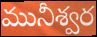
మునీశ్వర